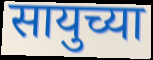
सायुच्या